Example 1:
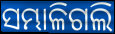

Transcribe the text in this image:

ସମ୍ଭାଳିଗଲି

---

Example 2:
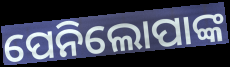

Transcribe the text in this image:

ପେନିଲୋପାଙ୍କ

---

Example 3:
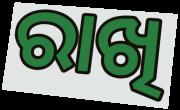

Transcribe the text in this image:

ରାଖି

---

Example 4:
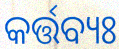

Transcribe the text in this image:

କର୍ତ୍ତବ୍ୟଃ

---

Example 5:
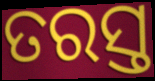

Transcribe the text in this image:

ତରସ୍ତ